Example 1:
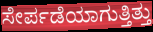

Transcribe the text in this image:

ಸೇರ್ಪಡೆಯಾಗುತ್ತಿತ್ತು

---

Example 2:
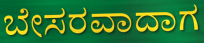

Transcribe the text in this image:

ಬೇಸರವಾದಾಗ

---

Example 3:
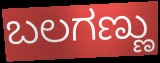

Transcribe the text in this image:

ಬಲಗಣ್ಣು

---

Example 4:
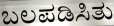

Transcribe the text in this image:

ಬಲಪಡಿಸಿತು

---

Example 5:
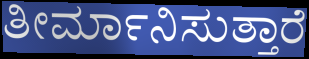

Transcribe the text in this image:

ತೀರ್ಮಾನಿಸುತ್ತಾರೆ